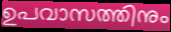
ഉപവാസത്തിനും